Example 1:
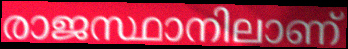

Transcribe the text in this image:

രാജസ്ഥാനിലാണ്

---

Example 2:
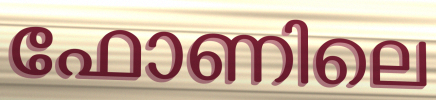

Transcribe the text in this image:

ഫോണിലെ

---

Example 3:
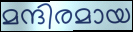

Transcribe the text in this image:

മന്ദിരമായ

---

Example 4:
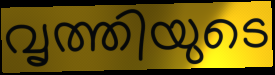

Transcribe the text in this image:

വൃത്തിയുടെ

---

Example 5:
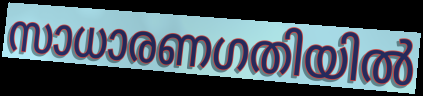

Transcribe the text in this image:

സാധാരണഗതിയിൽ